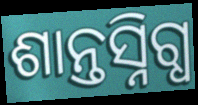
ଶାନ୍ତସ୍ନିଗ୍ଧ